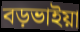
বড়ভাইয়া